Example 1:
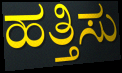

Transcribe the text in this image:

ಹತ್ತಿಸು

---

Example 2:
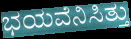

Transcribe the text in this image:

ಭಯವೆನಿಸಿತ್ತು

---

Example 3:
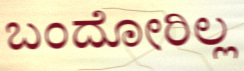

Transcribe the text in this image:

ಬಂದೋರಿಲ್ಲ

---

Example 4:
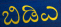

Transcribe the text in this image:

ಬಿಡಿಎ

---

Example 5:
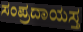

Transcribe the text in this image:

ಸಂಪ್ರದಾಯಸ್ತ